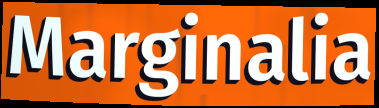
Marginalia